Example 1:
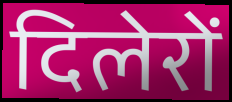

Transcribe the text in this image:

दिलेरों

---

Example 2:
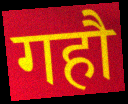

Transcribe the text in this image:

गहौ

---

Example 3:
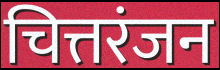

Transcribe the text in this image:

चित्तरंजन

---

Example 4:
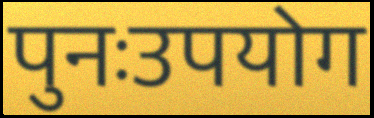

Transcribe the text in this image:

पुनःउपयोग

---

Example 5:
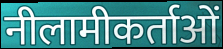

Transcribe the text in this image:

नीलामीकर्ताओं